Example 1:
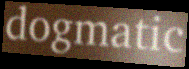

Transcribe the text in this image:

dogmatic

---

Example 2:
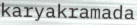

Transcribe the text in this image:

karyakramada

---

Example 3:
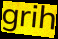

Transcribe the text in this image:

grih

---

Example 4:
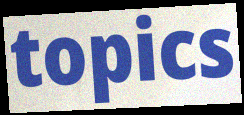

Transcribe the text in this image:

topics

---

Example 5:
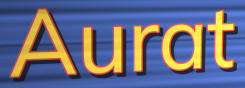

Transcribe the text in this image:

Aurat